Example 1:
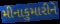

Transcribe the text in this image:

મીનાકુમારીને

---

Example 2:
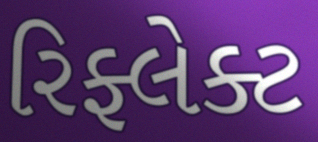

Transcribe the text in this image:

રિફ્લેક્ટ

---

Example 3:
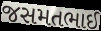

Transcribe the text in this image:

જસમતભાઈ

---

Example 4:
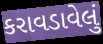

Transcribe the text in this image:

કરાવડાવેલું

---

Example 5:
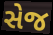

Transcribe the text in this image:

સેજ